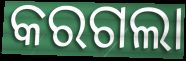
କରଗଲା